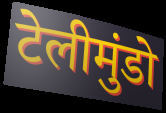
टेलीमुंडो